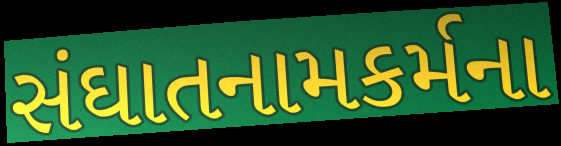
સંઘાતનામકર્મના